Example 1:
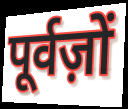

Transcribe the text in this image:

पूर्वज़ों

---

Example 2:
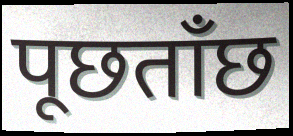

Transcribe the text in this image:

पूछताँछ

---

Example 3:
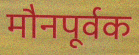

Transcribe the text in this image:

मौनपूर्वक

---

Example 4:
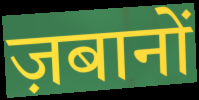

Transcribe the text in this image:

ज़बानों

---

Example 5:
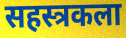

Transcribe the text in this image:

सहस्त्रकला